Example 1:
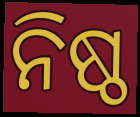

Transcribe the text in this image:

ନିଷ୍ଠ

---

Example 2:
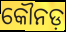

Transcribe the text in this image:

କୌନଡ଼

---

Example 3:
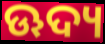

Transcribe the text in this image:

ଊଦ୍ୟ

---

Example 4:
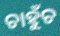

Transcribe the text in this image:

ଚାହୁଁଚ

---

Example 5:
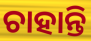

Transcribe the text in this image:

ଚାହାନ୍ତି